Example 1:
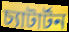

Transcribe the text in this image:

চ্যাটার্টন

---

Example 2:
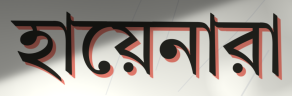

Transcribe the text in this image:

হায়েনারা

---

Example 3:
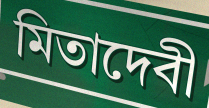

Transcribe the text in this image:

মিতাদেবী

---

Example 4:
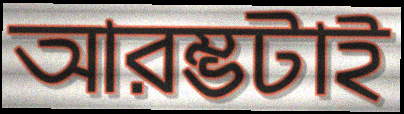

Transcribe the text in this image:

আরম্ভটাই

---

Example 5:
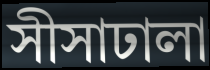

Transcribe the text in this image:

সীসাঢালা